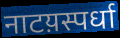
नाटय़स्पर्धा